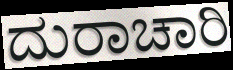
ದುರಾಚಾರಿ